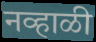
नव्हाळी